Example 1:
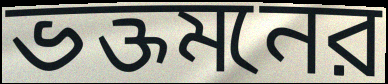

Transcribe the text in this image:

ভক্তমনের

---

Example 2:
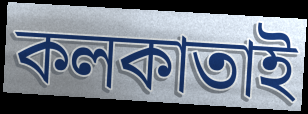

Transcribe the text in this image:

কলকাতাই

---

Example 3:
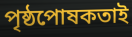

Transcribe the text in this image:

পৃষ্ঠপোষকতাই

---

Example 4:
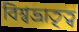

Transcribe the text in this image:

বিশ্বভ্রাতৃত্ব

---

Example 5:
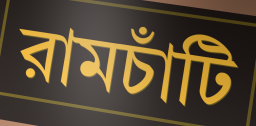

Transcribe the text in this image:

রামচাঁটি